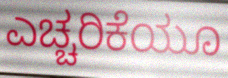
ಎಚ್ಚರಿಕೆಯೂ